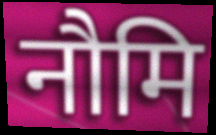
नौमि